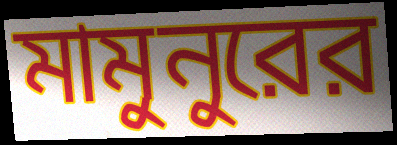
মামুনুরের